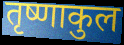
तृष्णाकुल